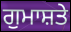
ਗੁਮਾਸ਼ਤੇ